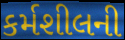
કર્મશીલની